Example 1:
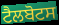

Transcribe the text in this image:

ਟੈਲਬੋਟਸ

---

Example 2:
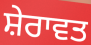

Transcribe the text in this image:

ਸ਼ੇਰਾਵਤ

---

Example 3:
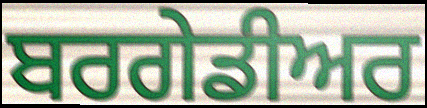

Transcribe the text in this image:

ਬਰਗੇਡੀਅਰ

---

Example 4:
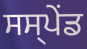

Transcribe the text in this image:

ਸਸ੍ਪੇੰਡ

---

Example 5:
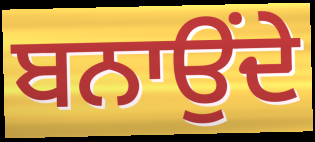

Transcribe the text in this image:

ਬਨਾਉਂਦੇ